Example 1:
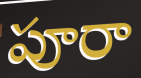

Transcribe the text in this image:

పూరా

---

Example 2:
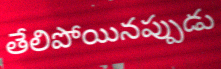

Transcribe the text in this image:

తేలిపోయినప్పుడు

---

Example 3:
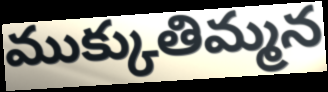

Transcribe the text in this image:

ముక్కుతిమ్మన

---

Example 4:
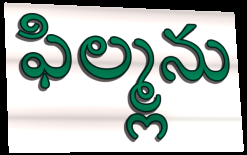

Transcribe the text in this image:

ఫిల్మ్లను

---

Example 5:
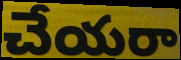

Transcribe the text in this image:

చేయరా